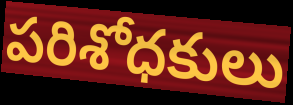
పరిశోధకులు